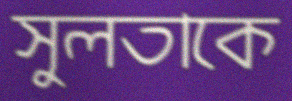
সুলতাকে